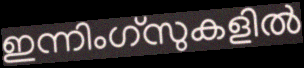
ഇന്നിംഗ്സുകളിൽ